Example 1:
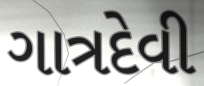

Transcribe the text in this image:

ગાત્રદેવી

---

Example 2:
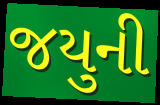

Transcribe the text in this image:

જયુની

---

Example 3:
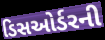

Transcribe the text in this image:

ડિસઓર્ડરની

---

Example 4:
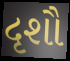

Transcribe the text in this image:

દૃશૌ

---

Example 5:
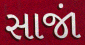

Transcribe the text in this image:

સાજાં